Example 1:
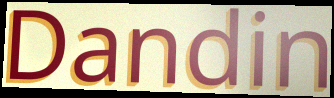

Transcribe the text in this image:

Dandin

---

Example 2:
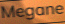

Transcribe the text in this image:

Megane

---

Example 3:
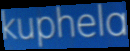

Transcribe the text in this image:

kuphela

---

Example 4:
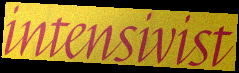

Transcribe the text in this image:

intensivist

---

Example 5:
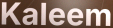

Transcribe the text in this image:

Kaleem